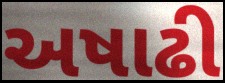
અષાઢી